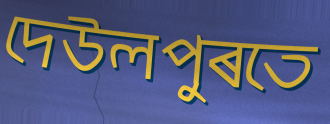
দেউলপুৰতে